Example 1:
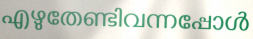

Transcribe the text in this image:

എഴുതേണ്ടിവന്നപ്പോൾ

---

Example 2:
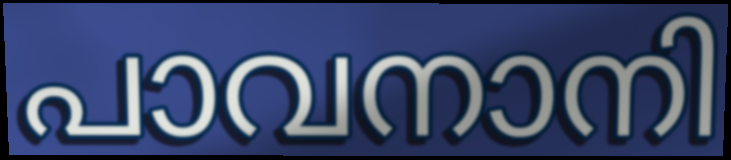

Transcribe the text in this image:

പാവനാനി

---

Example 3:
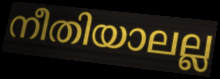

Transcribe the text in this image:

നീതിയാലല്ല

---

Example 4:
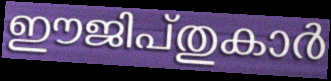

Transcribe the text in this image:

ഈജിപ്തുകാർ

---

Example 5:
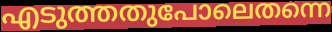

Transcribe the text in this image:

എടുത്തതുപോലെതന്നെ